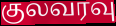
குலவரவு